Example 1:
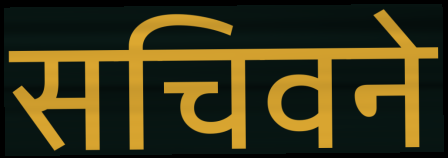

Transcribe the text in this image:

सचिवने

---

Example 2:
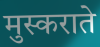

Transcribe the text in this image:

मुस्कराते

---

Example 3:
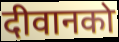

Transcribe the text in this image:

दीवानको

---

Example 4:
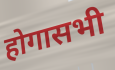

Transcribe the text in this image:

होगासभी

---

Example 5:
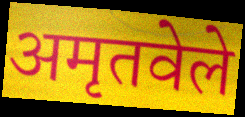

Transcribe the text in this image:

अमृतवेले